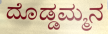
ದೊಡ್ಡಮ್ಮನ